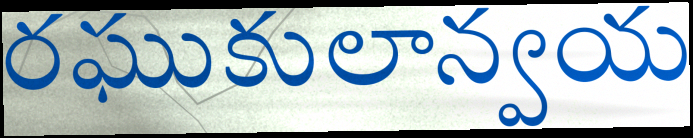
రఘుకులాన్వయ